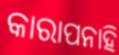
କାରାପନାହି